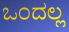
ಒಂದಲ್ಲ